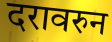
दरावरुन